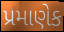
પ્રમાણેક